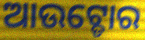
ଆଉଟ୍ଡୋର